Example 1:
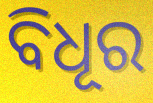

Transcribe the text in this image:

ବିଧୂର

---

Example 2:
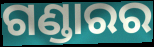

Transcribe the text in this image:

ଗଣ୍ଡାରର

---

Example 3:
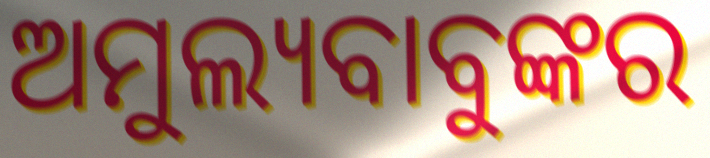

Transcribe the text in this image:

ଅମୁଲ୍ୟବାବୁଙ୍କର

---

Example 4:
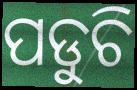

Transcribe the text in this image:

ପଡୁଚି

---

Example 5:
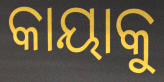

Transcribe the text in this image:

କାୟାକୁ